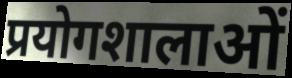
प्रयोगशालाओं